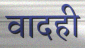
वादही